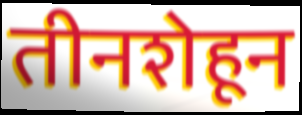
तीनशेहून